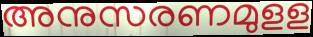
അനുസരണമുളള